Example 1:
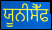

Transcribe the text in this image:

ਯੂਨੀਸੈੱਫ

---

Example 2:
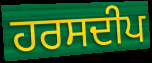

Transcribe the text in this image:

ਹਰਸਦੀਪ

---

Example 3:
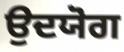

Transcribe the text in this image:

ਉਦਯੋਗ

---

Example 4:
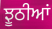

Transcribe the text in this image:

ਝੂਠੀਆਂ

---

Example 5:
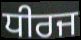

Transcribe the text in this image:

ਧੀਰਜ